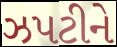
ઝપટીને